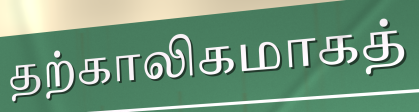
தற்காலிகமாகத்